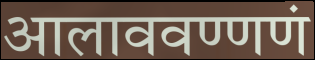
आलाववण्णणं